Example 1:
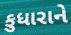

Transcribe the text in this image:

કુધારાને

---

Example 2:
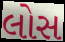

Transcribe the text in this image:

લોસ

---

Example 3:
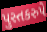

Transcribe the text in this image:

પુસ્તકરુપે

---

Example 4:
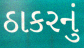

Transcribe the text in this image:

ઠાકરનું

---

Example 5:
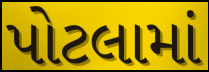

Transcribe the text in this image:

પોટલામાં